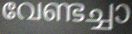
വേണ്ടച്ചാ